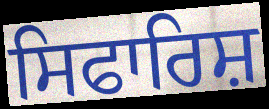
ਸਿਫਾਰਿਸ਼